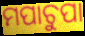
ମପାଚୁପା